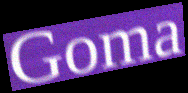
Goma